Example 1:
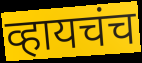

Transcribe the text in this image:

व्हायचंच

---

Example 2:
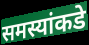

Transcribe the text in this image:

समस्यांकडे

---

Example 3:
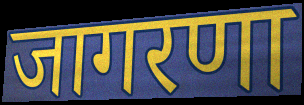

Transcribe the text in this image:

जागरणा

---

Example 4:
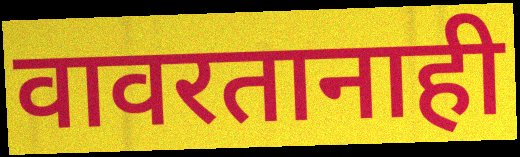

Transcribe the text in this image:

वावरतानाही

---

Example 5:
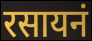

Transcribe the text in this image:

रसायनं